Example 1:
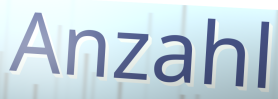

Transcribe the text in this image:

Anzahl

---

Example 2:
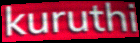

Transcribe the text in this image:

kuruthi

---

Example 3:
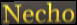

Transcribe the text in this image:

Necho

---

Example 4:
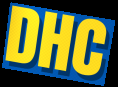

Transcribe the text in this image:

DHC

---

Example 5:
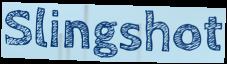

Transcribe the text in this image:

Slingshot